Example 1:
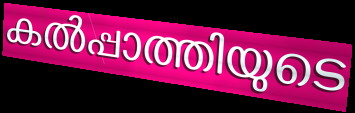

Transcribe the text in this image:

കൽപ്പാത്തിയുടെ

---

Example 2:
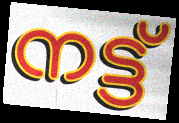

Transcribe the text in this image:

നട്ട്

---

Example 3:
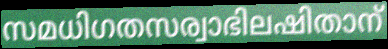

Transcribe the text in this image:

സമധിഗതസര്വാഭിലഷിതാന്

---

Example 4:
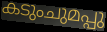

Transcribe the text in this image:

കടുംചുമപ്പു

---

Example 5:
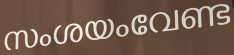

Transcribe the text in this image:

സംശയംവേണ്ട